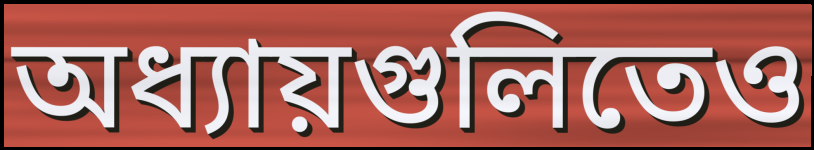
অধ্যায়গুলিতেও